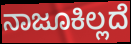
ನಾಜೂಕಿಲ್ಲದೆ